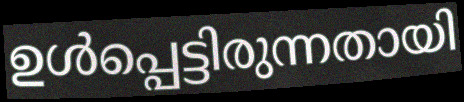
ഉൾപ്പെട്ടിരുന്നതായി